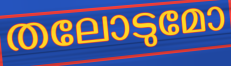
തലോടുമോ